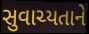
સુવાચ્યતાને